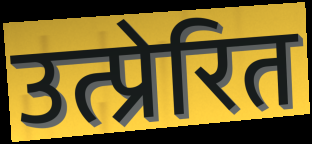
उत्प्रेरित